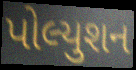
પોલ્યુશન